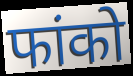
फांको